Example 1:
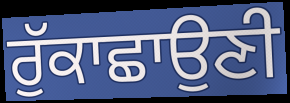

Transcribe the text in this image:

ਰੁੱਕਾਛਾਉਣੀ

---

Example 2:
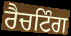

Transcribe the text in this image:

ਰੈਚਟਿੰਗ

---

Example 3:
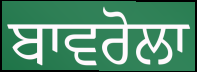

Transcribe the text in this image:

ਬਾਵਰੋਲਾ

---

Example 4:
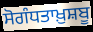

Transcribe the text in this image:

ਸੋਗੰਧਤਾਖ਼ੁਸ਼ਬੂ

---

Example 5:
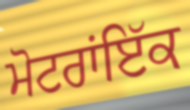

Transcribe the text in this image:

ਮੋਟਰਾਂਇੱਕ